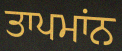
ਤਾਪਮਾਂਨ